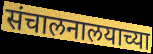
संचालनालयाच्या